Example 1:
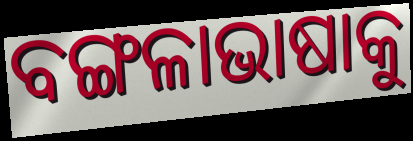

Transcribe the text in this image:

ବଙ୍ଗଳାଭାଷାକୁ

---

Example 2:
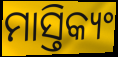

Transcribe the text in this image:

ମାସ୍ତିକ୍ୟଂ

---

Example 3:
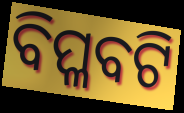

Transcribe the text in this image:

ବିପ୍ଳବଟି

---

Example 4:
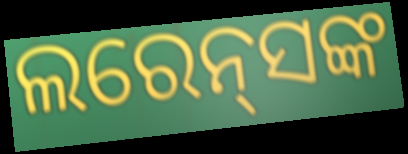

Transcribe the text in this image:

ଲରେନ୍‌ସଙ୍କ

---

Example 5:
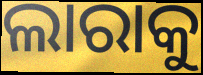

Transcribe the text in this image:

ଲାରାକୁ